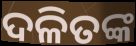
ଦଳିତଙ୍କ